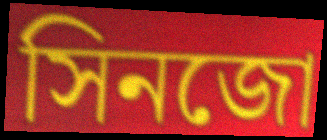
সিনজো